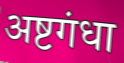
अष्टगंधा